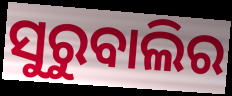
ସୁରୁବାଲିର